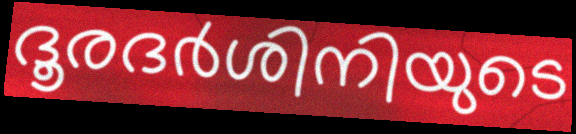
ദൂരദർശിനിയുടെ